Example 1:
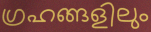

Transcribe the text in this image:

ഗ്രഹങ്ങളിലും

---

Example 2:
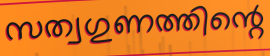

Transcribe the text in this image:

സത്വഗുണത്തിന്റെ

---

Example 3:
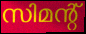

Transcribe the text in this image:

സിമന്റ്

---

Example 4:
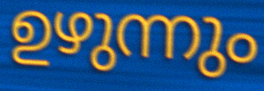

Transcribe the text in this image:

ഉഴുന്നും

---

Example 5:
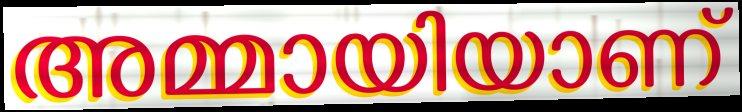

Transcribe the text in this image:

അമ്മായിയാണ്